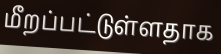
மீறப்பட்டுள்ளதாக